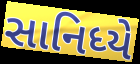
સાનિધ્યે